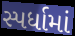
સ્પર્ધામાં